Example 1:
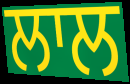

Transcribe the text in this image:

ਲਾਲ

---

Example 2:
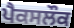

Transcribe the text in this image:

ਪੈਕਸਲੌਕ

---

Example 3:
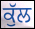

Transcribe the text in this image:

ਕੁੱਲ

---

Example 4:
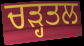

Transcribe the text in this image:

ਚੜ੍ਹਤਲ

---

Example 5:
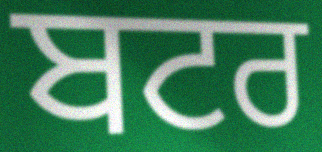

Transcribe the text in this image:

ਬਟਰ